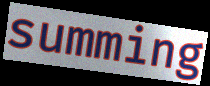
summing